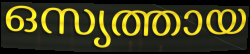
ഒസ്യത്തായ